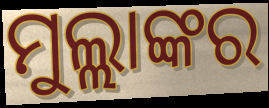
ମୁଲ୍ଲାଙ୍କର